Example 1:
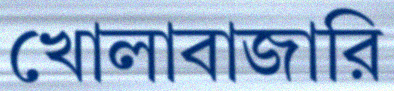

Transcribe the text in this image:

খোলাবাজারি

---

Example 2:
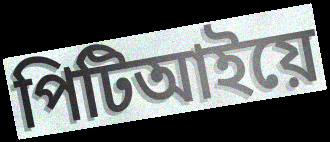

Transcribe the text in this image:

পিটিআইয়ে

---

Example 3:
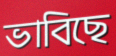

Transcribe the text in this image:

ভাবিছে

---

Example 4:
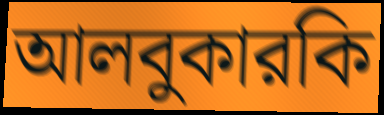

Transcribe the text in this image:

আলবুকারকি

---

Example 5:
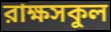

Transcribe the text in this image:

রাক্ষসকুল